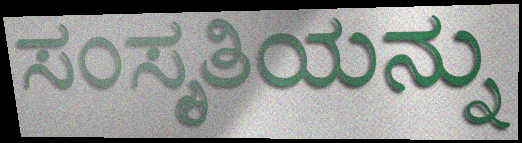
ಸಂಸ್ಕೃತಿಯನ್ನು